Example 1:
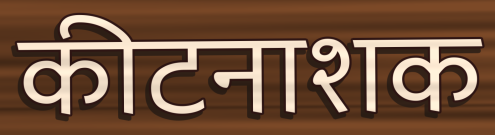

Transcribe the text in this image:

कीटनाशक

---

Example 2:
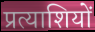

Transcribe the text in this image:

प्रत्याशियों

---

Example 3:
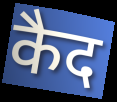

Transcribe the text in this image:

कैद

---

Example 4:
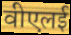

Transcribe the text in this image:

वीएलई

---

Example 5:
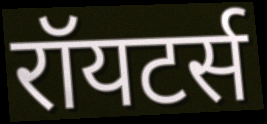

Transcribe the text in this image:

रॉयटर्स